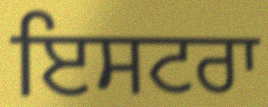
ਇਸਟਰਾ